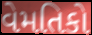
વેમતિકો